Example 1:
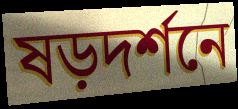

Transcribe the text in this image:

ষড়দর্শনে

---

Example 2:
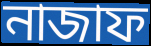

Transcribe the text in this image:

নাজাফ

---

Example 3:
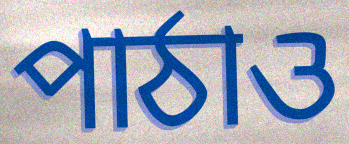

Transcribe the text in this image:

পাঠাও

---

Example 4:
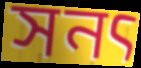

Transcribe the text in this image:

সনৎ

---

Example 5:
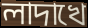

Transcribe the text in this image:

লাদাখে